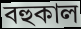
বহুকাল